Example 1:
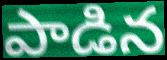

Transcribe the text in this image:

పాడిన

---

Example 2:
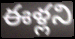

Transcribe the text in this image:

ఈళ్లని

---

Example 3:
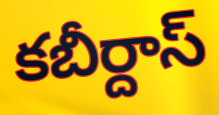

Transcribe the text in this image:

కబీర్దాస్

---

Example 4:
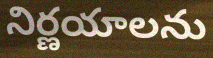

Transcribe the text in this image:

నిర్ణయాలను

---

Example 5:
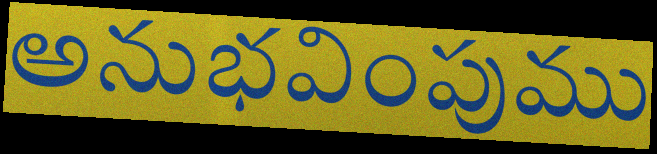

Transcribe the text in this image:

అనుభవింపుము